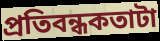
প্রতিবন্ধকতাটা